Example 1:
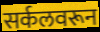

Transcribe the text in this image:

सर्कलवरून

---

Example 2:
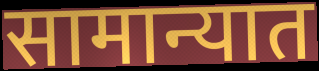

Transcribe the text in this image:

सामान्यात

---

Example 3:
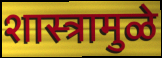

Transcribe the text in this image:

शास्त्रामुळे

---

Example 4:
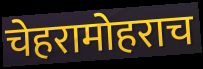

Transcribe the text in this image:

चेहरामोहराच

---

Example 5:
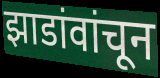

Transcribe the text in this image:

झाडांवांचून